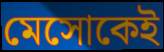
মেসোকেই